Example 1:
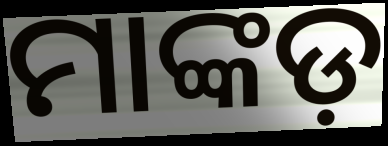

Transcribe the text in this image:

ମାଙ୍କଡ଼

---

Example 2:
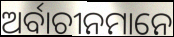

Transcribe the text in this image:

ଅର୍ବାଚୀନମାନେ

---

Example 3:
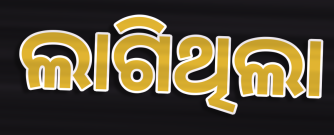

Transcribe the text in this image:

ଲାଗିଥିଲା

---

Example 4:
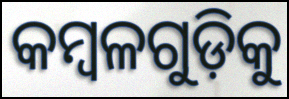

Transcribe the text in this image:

କମ୍ବଳଗୁଡ଼ିକୁ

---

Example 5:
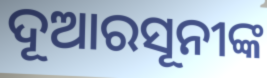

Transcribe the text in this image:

ଦୂଆରସୂନୀଙ୍କ